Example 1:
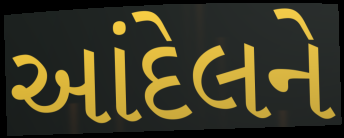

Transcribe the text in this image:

આંદેલને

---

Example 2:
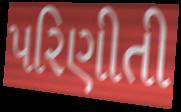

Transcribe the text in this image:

પરિણીતી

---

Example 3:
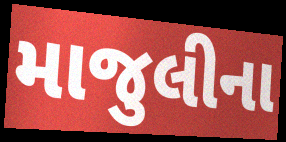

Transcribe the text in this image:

માજુલીના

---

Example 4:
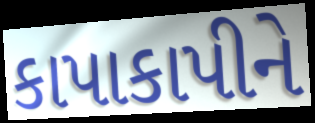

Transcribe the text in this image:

કાપાકાપીને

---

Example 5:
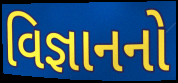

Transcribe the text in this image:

વિજ્ઞાનનો